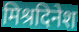
मिश्रदिनेश